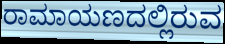
ರಾಮಾಯಣದಲ್ಲಿರುವ